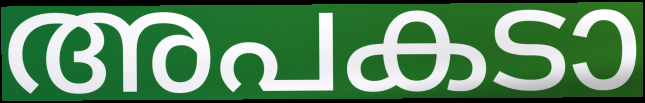
അപകടാ